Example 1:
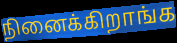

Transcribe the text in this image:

நினைக்கிறாங்க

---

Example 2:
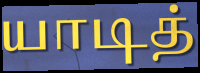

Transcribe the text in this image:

யாடித்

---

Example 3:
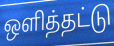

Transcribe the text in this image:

ஒளித்தட்டு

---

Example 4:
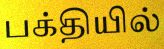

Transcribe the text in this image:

பக்தியில்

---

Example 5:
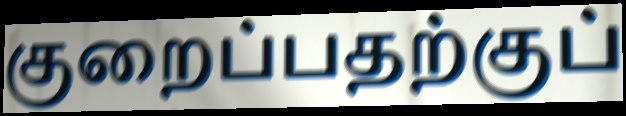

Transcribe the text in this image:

குறைப்பதற்குப்